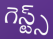
గెస్ట్స్